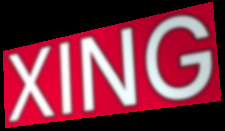
XING